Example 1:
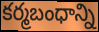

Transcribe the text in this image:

కర్మబంధాన్ని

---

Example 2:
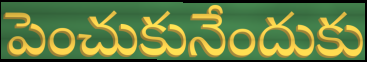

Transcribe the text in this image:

పెంచుకునేందుకు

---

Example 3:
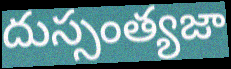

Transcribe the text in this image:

దుస్సంత్యజా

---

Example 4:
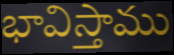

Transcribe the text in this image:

భావిస్తాము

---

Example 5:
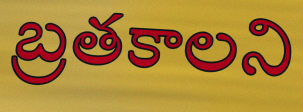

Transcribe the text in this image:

బ్రతకాలని